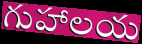
గుహాలయ